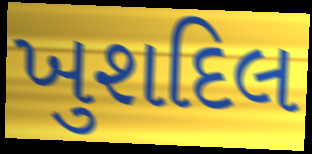
ખુશદિલ